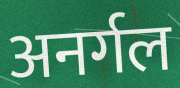
अनर्गल